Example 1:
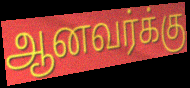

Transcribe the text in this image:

ஆனவர்க்கு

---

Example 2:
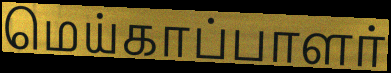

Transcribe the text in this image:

மெய்காப்பாளர்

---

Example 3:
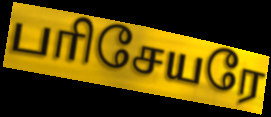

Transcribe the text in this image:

பரிசேயரே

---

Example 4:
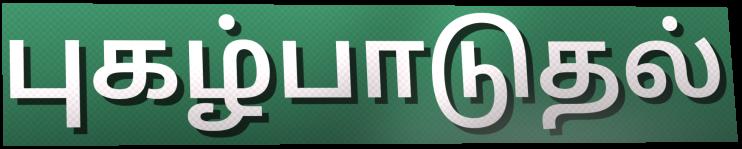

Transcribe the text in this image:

புகழ்பாடுதல்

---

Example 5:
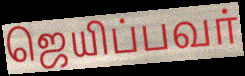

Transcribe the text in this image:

ஜெயிப்பவர்